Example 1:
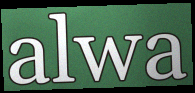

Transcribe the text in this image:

alwa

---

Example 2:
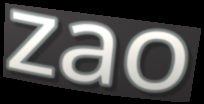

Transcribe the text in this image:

zao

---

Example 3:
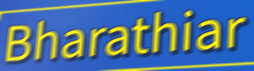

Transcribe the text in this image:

Bharathiar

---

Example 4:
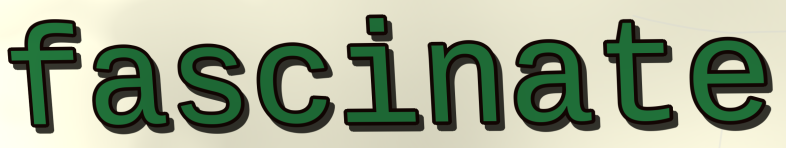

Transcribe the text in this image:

fascinate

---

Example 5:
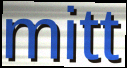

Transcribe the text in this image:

mitt